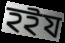
হইয